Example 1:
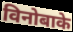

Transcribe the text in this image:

विनोबाके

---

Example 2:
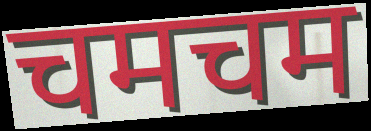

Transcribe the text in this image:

चमचम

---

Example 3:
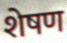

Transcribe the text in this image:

शेषण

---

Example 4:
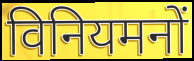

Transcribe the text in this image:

विनियमनों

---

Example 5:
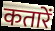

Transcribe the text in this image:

कतारें